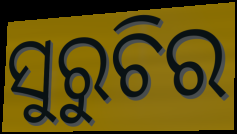
ସୁରୁଚିର